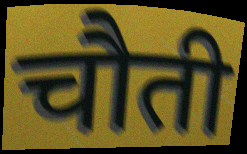
चौती